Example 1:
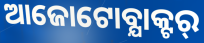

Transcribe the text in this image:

ଆଜୋଟୋବ୍ଯାକ୍ଟର୍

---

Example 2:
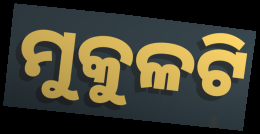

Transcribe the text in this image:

ମୁକୁଳଟି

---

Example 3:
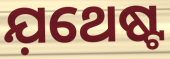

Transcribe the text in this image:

ଯ଼ଥେଷ୍ଟ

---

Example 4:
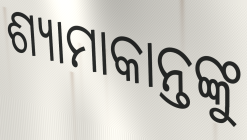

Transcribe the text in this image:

ଶ୍ୟାମାକାନ୍ତଙ୍କୁ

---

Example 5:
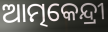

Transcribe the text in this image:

ଆତ୍ମକେନ୍ଦ୍ରୀ